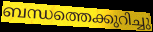
ബന്ധത്തെക്കുറിച്ചു